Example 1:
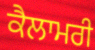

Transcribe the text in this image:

ਕੈਲਾਮਰੀ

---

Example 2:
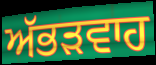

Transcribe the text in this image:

ਅੱਭੜਵਾਹ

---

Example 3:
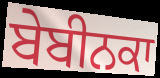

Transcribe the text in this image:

ਬੇਬੀਨਕਾ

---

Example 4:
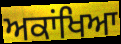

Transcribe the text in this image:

ਅਕਾਂਖਿਆ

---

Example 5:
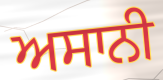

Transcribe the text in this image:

ਅਸਾਨੀ